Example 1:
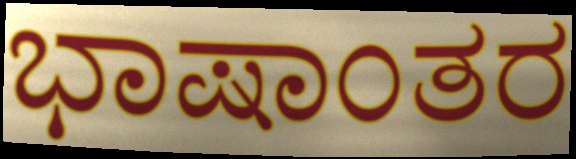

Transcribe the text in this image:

ಭಾಷಾಂತರ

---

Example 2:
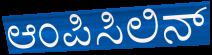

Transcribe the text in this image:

ಆಂಪಿಸಿಲಿನ್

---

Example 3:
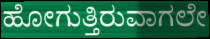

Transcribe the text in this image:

ಹೋಗುತ್ತಿರುವಾಗಲೇ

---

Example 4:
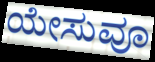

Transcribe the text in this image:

ಯೇಸುವೂ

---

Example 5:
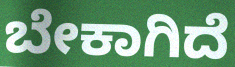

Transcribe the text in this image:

ಬೇಕಾಗಿದೆ